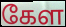
கேள